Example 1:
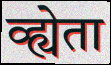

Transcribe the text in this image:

व्ह्येता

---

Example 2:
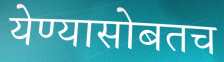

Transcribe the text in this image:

येण्यासोबतच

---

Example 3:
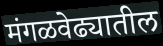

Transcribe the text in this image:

मंगळवेढ्यातील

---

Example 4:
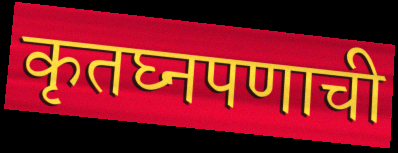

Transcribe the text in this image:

कृतघ्नपणाची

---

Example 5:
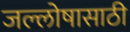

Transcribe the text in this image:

जल्लोषासाठी